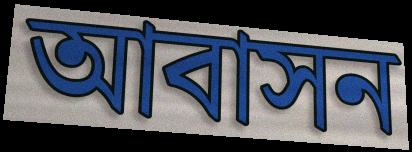
আবাসন